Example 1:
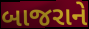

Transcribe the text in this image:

બાજરાને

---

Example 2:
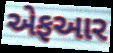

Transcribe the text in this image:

એફઆર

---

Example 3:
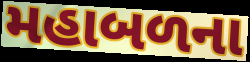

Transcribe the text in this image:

મહાબળના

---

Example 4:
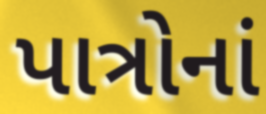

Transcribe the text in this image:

પાત્રોનાં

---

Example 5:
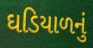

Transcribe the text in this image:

ઘડિયાળનું